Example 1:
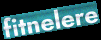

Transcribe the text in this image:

fitnelere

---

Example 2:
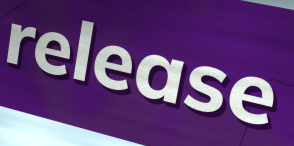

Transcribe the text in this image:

release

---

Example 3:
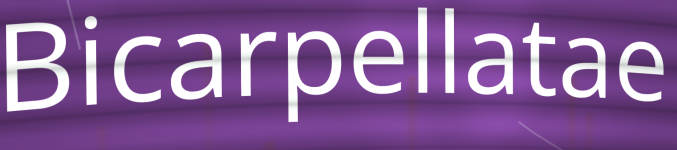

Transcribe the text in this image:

Bicarpellatae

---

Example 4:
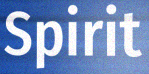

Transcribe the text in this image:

Spirit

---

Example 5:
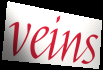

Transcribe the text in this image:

veins